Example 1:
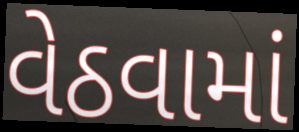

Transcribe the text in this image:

વેઠવામાં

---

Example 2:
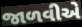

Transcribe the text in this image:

જાળવીએ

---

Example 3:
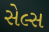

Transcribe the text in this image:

સેલ્સ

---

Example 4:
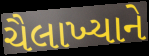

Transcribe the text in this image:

ચૈલાખ્યાને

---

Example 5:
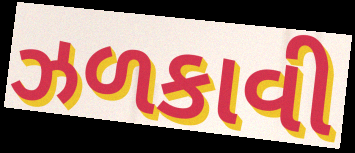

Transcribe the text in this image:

ઝળકાવી